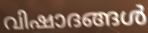
വിഷാദങ്ങൾ